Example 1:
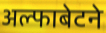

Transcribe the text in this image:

अल्फाबेटने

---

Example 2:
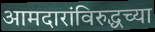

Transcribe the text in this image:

आमदारांविरुद्धच्या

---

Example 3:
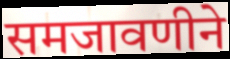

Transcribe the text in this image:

समजावणीने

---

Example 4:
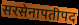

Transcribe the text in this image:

सरसेनापतीपद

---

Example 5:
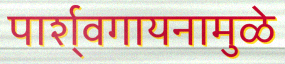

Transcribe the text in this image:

पार्श्वगायनामुळे